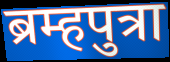
ब्रम्हपुत्रा